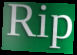
Rip